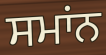
ਸਮਾਂਨ